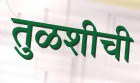
तुळशीची